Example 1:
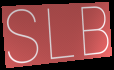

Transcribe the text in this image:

SLB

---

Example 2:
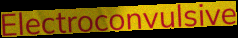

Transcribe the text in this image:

Electroconvulsive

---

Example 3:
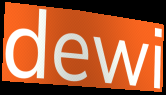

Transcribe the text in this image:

dewi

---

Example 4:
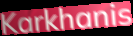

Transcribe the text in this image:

Karkhanis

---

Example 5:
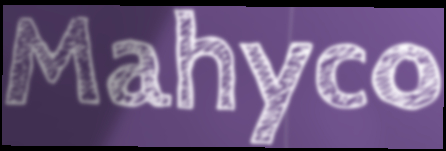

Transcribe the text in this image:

Mahyco